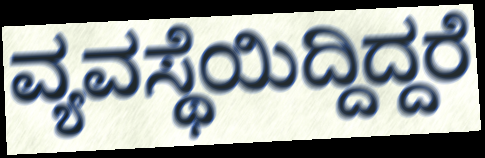
ವ್ಯವಸ್ಥೆಯಿದ್ದಿದ್ದರೆ